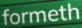
formeth